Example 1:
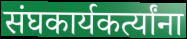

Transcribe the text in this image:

संघकार्यकर्त्यांना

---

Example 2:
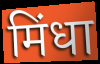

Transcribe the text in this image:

मिंधा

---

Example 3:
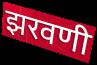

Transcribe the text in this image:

झरवणी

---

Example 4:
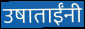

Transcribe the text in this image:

उषाताईंनी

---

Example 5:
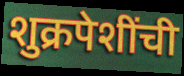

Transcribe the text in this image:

शुक्रपेशींची